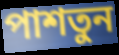
পাশতুন